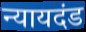
न्यायदंड